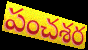
పంచశర